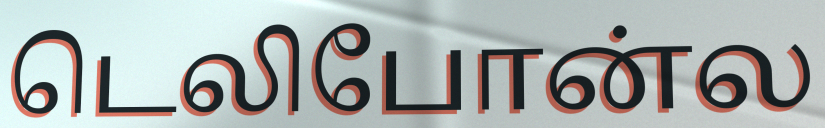
டெலிபோன்ல